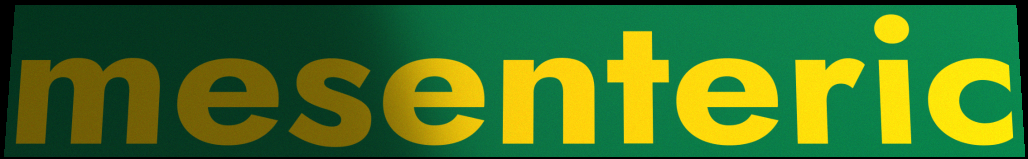
mesenteric